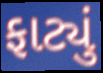
ફાટ્યું